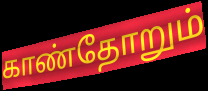
காண்தோறும்